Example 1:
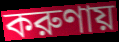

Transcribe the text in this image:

করুণায়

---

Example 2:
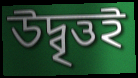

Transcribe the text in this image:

উদ্বৃত্তই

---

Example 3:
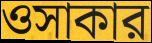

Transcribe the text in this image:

ওসাকার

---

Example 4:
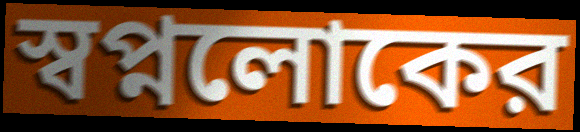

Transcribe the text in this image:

স্বপ্নলোকের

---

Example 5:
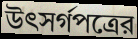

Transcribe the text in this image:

উৎসর্গপত্রের